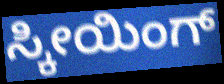
ಸ್ಕೀಯಿಂಗ್